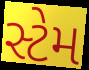
સ્ટેમ